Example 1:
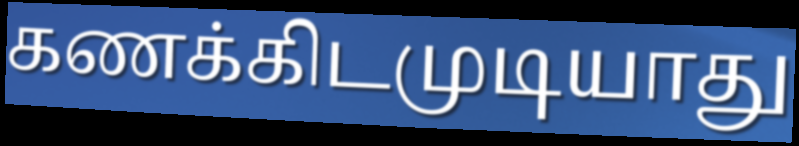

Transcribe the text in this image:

கணக்கிடமுடியாது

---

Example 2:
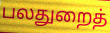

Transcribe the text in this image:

பலதுறைத்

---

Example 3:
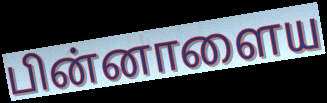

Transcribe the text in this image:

பின்னாளைய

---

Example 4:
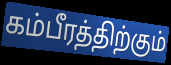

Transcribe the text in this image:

கம்பீரத்திற்கும்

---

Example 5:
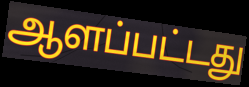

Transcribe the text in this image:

ஆளப்பட்டது